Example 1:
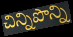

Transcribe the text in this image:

చిన్నిపొన్ని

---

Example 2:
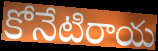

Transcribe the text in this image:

కోనేటిరాయ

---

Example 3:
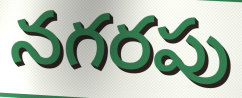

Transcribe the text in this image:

నగరపు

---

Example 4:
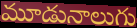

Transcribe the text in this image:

మూడునాలుగు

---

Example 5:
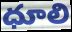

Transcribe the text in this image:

ధూలి